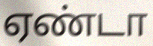
ஏண்டா